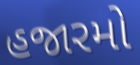
હજારમો